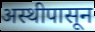
अस्थीपासून